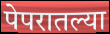
पेपरातल्या